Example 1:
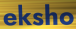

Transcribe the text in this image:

eksho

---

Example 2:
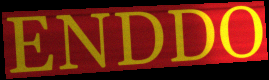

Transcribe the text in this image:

ENDDO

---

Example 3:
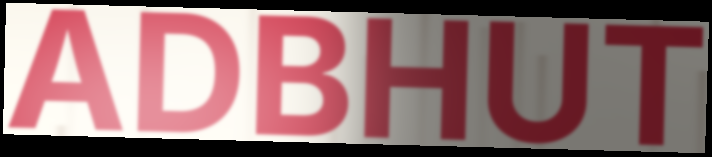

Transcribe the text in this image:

ADBHUT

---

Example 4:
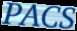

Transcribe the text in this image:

PACS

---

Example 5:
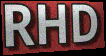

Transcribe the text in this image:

RHD